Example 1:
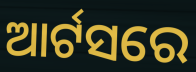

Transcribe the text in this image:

ଆର୍ଟସରେ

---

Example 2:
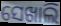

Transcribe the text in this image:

ସେଖାଲି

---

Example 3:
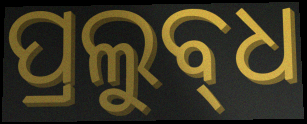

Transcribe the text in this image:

ପ୍ରଲୁବ୍‌ଧ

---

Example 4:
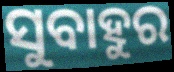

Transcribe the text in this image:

ସୁବାହୁର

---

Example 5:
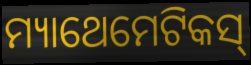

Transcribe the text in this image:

ମ୍ୟାଥେମେଟିକସ୍